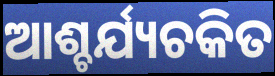
ଆଶ୍ଚର୍ଯ୍ୟଚକିତ